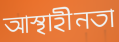
আস্থাহীনতা